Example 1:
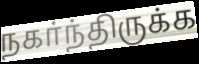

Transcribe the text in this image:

நகர்ந்திருக்க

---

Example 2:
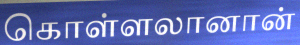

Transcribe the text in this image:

கொள்ளலானான்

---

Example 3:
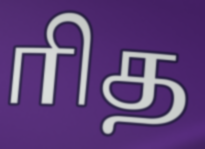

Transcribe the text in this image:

ரித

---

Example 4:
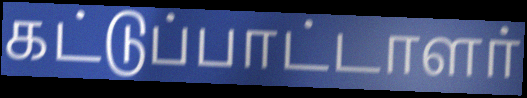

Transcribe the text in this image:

கட்டுப்பாட்டாளர்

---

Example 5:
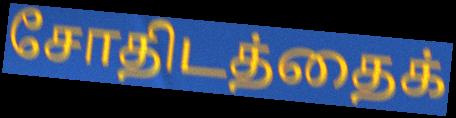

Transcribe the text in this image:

சோதிடத்தைக்